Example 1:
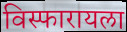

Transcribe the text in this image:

विस्फारायला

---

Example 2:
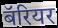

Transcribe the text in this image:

बॅरियर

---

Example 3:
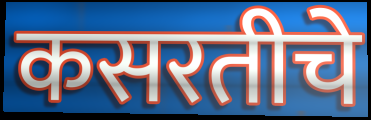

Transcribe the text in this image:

कसरतीचे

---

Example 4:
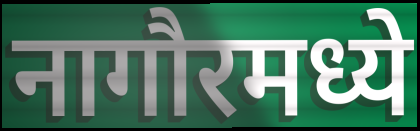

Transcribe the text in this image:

नागौरमध्ये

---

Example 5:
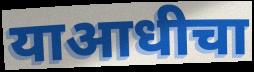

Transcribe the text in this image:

याआधीचा